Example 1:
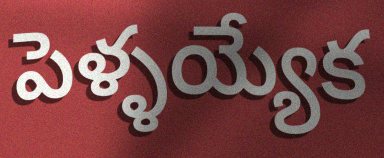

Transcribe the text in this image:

పెళ్ళయ్యేక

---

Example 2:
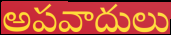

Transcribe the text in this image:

అపవాదులు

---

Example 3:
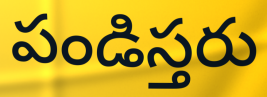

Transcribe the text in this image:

పండిస్తరు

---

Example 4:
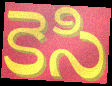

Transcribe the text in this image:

కెసి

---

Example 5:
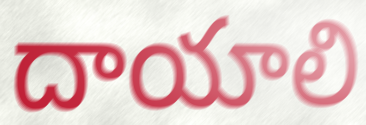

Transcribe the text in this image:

దాయాలి